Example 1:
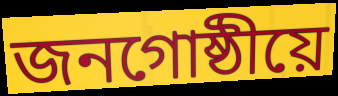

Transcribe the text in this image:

জনগোষ্ঠীয়ে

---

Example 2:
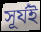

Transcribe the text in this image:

সূৰ্যই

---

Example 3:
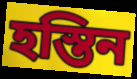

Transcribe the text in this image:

হস্তিন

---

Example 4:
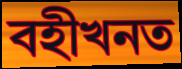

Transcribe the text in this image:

বহীখনত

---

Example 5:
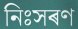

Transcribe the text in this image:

নিঃসৰণ